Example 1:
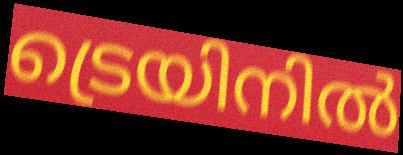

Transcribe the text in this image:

ട്രെയിനിൽ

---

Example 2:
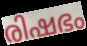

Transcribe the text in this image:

രിഷഭം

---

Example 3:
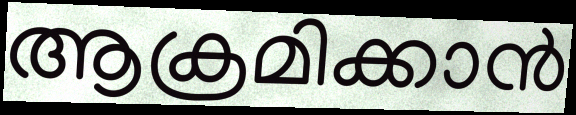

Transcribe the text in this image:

ആക്രമിക്കാൻ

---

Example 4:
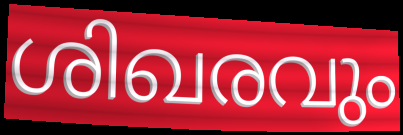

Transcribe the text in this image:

ശിഖരവും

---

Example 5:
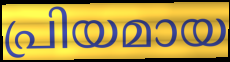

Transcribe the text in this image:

പ്രിയമായ